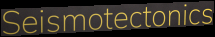
Seismotectonics